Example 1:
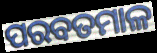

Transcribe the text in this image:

ପରବତମାଳ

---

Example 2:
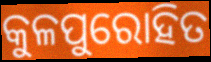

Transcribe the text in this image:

କୁଳପୁରୋହିତ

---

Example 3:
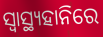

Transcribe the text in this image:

ସ୍ୱାସ୍ଥ୍ୟହାନିରେ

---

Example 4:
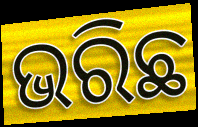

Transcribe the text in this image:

ଭରିଛ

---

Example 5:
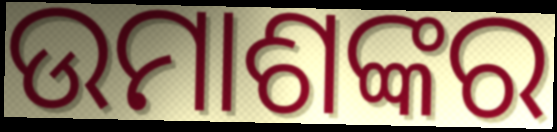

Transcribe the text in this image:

ଉମାଶଙ୍କର